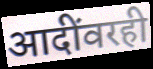
आदींवरही